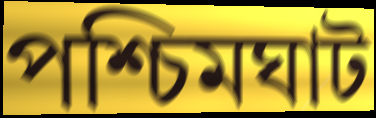
পশ্চিমঘাট